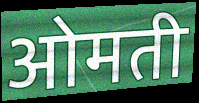
ओमती